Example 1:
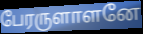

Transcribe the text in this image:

பேரருளாளனே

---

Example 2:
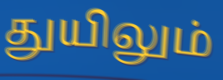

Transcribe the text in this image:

துயிலும்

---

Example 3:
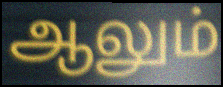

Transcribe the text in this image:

ஆலும்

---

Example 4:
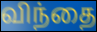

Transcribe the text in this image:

விந்தை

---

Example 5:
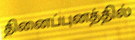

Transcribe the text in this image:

தினைப்புனத்தில்